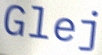
Glej